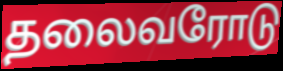
தலைவரோடு